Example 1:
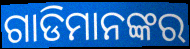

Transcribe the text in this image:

ଗାଡିମାନଙ୍କର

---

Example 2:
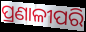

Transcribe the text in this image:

ପ୍ରଣାଳୀପରି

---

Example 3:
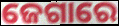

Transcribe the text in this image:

ଜେଗାରେ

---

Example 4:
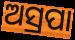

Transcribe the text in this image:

ଅସ୍ରପା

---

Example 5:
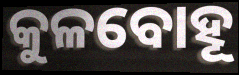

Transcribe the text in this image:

କୁଳବୋହୂ